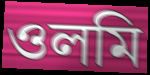
ওলমি